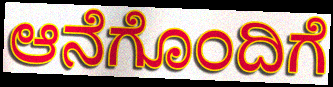
ಆನೆಗೊಂದಿಗೆ